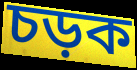
চড়ক